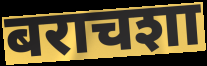
बराचशा